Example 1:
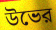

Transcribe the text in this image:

উভের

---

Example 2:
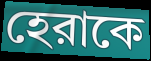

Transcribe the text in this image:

হেরাকে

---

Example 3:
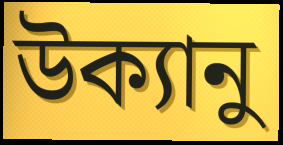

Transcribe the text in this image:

উক্যানু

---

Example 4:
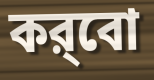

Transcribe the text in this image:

কর্‌বো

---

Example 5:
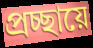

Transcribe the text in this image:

প্রচ্ছায়ে